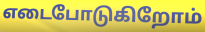
எடைபோடுகிறோம்